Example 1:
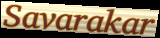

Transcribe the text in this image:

Savarakar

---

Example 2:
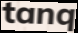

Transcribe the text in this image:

tanq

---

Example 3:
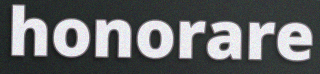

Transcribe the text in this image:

honorare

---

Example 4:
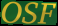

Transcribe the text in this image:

OSF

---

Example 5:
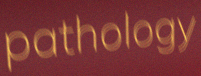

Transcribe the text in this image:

pathology